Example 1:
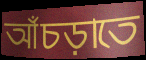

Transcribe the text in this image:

আঁচড়াতে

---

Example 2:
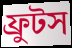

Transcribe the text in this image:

ফ্রুটস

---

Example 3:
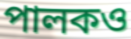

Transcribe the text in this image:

পালকও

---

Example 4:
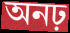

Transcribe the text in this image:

অনঢ়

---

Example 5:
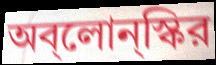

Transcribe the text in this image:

অব্‌লোন্‌স্কির